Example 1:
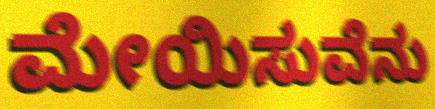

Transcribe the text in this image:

ಮೇಯಿಸುವೆನು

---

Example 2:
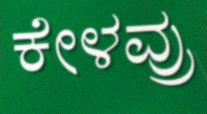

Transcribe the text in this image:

ಕೇಳವ್ರು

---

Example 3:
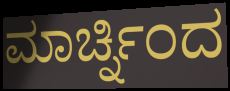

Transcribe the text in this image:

ಮಾರ್ಚ್ನಿಂದ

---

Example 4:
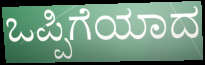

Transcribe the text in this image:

ಒಪ್ಪಿಗೆಯಾದ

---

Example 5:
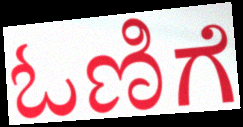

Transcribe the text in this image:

ಓಣಿಗೆ